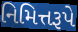
નિમિત્તરૂપે